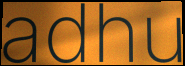
adhu